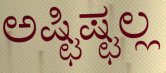
ಅಷ್ಟಿಷ್ಟಲ್ಲ